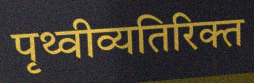
पृथ्वीव्यतिरिक्त